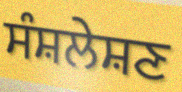
ਸੰਸ਼ਲੇਸ਼ਣ